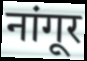
नांगूर